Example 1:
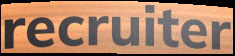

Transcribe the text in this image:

recruiter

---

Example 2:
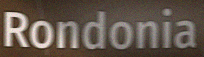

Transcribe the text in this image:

Rondonia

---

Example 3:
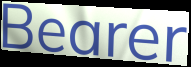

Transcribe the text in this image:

Bearer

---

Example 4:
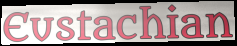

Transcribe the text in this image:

Eustachian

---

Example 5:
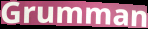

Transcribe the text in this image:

Grumman